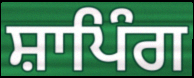
ਸ਼ਾਪਿੰਗ